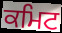
ਕਮਿਟ